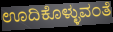
ಊದಿಕೊಳ್ಳುವಂತೆ